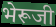
भेरूजी